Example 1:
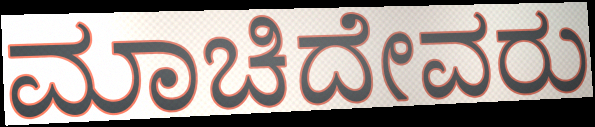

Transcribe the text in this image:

ಮಾಚಿದೇವರು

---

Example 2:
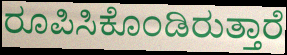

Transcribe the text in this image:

ರೂಪಿಸಿಕೊಂಡಿರುತ್ತಾರೆ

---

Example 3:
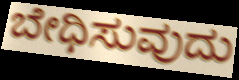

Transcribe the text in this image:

ಬೇಧಿಸುವುದು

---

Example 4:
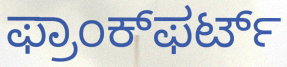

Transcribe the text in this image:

ಫ್ರಾಂಕ್‌ಫರ್ಟ್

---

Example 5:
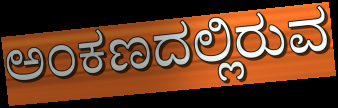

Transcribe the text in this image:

ಅಂಕಣದಲ್ಲಿರುವ